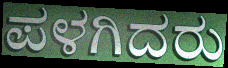
ಪಳಗಿದರು